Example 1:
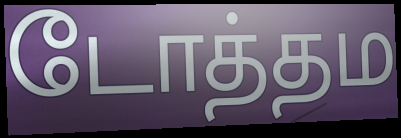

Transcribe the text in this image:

டோத்தம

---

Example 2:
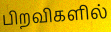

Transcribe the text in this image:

பிறவிகளில்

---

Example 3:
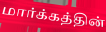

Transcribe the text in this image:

மார்க்கத்தின்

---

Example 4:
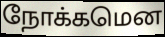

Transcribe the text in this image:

நோக்கமென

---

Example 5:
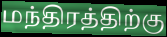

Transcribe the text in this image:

மந்திரத்திற்கு